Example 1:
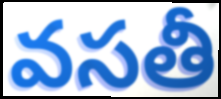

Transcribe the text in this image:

వసతీ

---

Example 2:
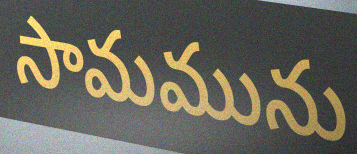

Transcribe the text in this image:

సామమును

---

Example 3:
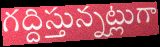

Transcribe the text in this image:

గద్దిస్తున్నట్లుగా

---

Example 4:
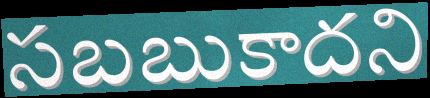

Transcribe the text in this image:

సబబుకాదని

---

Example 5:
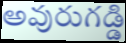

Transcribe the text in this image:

అవురుగడ్డి